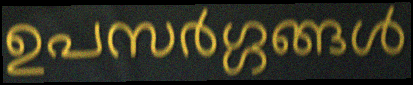
ഉപസർഗ്ഗങ്ങൾ